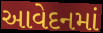
આવેદનમાં